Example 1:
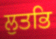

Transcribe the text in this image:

ਲੁਤਭਿ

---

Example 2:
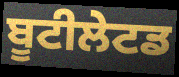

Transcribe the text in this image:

ਬੂਟੀਲੇਟਡ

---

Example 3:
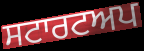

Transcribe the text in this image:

ਸਟਾਰਟਅਪ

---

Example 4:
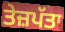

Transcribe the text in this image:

ਤੇਜ਼ਪੱਤਾ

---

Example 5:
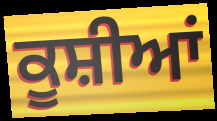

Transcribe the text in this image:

ਕੂਸ਼ੀਆਂ